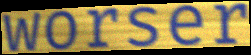
worser